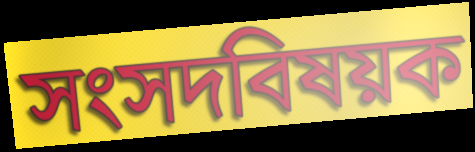
সংসদবিষয়ক